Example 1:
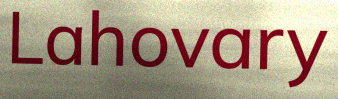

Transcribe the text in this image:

Lahovary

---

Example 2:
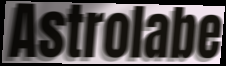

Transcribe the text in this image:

Astrolabe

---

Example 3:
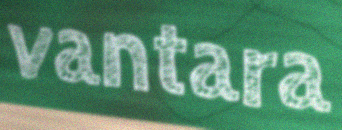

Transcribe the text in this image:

vantara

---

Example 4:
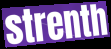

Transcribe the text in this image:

strenth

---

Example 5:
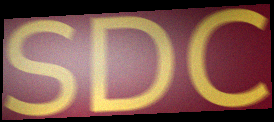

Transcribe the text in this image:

SDC